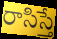
రాసిస్తే